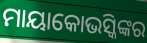
ମାୟାକୋଭସ୍କିଙ୍କର